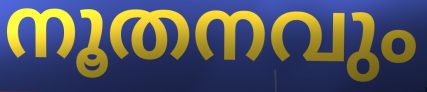
നൂതനവും